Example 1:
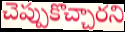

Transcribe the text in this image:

చెప్పుకొచ్చారని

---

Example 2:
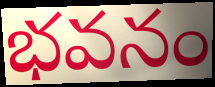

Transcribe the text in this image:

భవనం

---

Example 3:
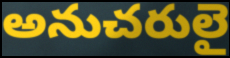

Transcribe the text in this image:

అనుచరులై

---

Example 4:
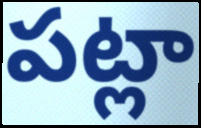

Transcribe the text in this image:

పట్లా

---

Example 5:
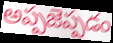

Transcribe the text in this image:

అప్పజెప్పడం